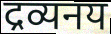
द्रव्यनय